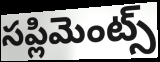
సప్లిమెంట్స్